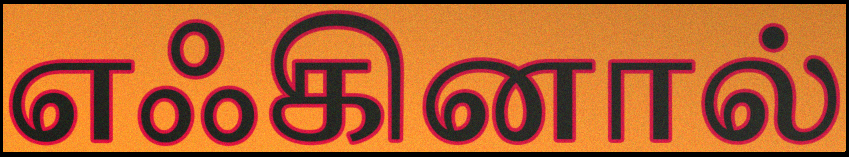
எஃகினால்